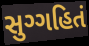
સુગ્ગહિતં